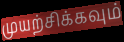
முயற்சிக்கவும்